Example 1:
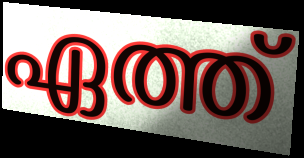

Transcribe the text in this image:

ഏത്ത്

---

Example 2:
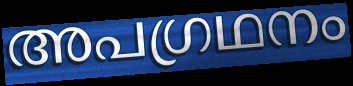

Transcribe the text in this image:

അപഗ്രഥനം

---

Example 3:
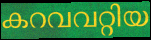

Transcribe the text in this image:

കറവവറ്റിയ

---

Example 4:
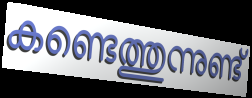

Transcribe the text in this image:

കണ്ടെത്തുന്നുണ്ട്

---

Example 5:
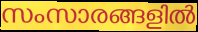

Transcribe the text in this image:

സംസാരങ്ങളിൽ